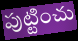
పుట్టించు